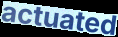
actuated